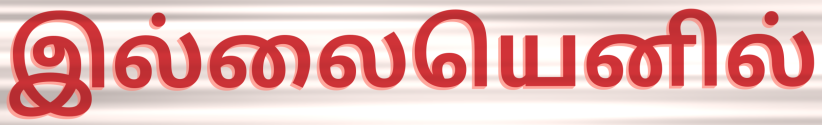
இல்லையெனில்